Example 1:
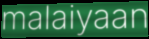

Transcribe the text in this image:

malaiyaan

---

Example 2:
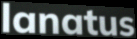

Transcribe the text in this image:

lanatus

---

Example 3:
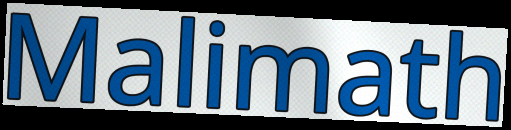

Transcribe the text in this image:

Malimath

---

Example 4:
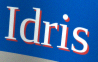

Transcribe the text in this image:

Idris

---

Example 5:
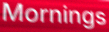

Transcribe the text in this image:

Mornings